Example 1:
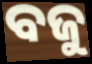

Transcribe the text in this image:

ବଜୁ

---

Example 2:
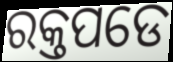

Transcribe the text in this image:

ରକ୍ତପଡେ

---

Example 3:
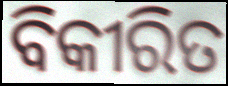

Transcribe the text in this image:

ବିକୀରିତ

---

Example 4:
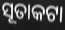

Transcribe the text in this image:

ସୂତାକଟା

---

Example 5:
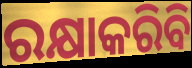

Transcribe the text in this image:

ରକ୍ଷାକରିବି